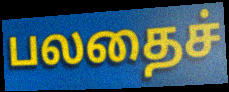
பலதைச்